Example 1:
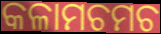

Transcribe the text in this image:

କଳାମଚମଚ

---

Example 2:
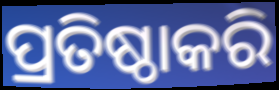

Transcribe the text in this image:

ପ୍ରତିଷ୍ଠାକରି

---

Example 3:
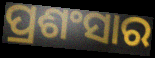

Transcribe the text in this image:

ପ୍ରଶଂସାର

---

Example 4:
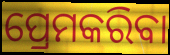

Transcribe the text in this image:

ପ୍ରେମକରିବା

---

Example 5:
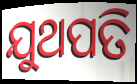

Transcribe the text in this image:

ଯୁଥପତି